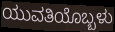
ಯುವತಿಯೊಬ್ಬಳು